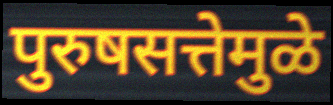
पुरुषसत्तेमुळे